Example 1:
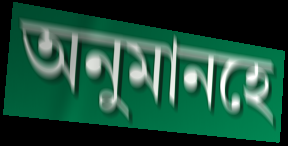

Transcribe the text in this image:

অনুমানহে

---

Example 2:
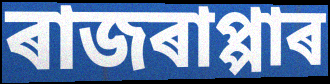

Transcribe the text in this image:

ৰাজৰাপ্পাৰ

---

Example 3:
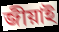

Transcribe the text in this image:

জীয়াই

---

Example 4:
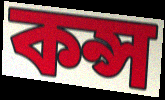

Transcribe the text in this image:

কন্স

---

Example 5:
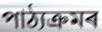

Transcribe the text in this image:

পাঠ্যক্ৰমৰ